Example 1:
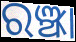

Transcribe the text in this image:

ରଞ୍ଝା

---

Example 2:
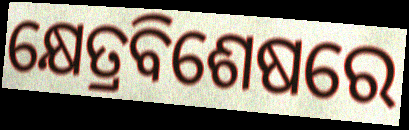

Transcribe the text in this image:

କ୍ଷେତ୍ରବିଶେଷରେ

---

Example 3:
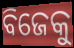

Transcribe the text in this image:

ବିଜେକୁ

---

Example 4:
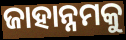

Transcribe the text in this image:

ଜାହାନ୍ନମକୁ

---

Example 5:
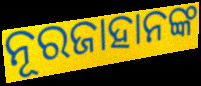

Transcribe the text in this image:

ନୂରଜାହାନଙ୍କ